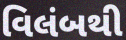
વિલંબથી